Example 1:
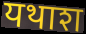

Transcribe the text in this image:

यथाश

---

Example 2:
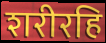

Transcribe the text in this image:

शरीरहि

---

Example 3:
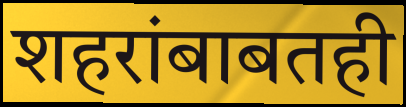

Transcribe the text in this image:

शहरांबाबतही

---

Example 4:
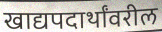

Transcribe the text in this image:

खाद्यपदार्थांवरील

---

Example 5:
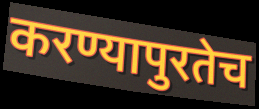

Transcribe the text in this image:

करण्यापुरतेच